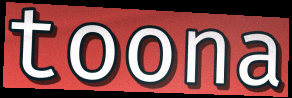
toona